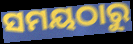
ସମୟଠାରୁ